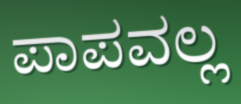
ಪಾಪವಲ್ಲ